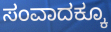
ಸಂವಾದಕ್ಕೂ